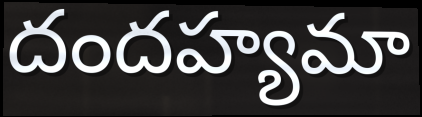
దందహ్యమా